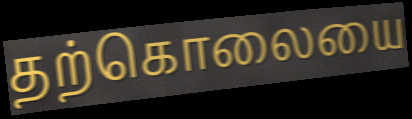
தற்கொலையை